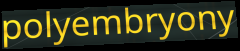
polyembryony